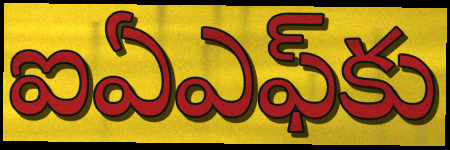
ఐఏఎఫ్‌కు